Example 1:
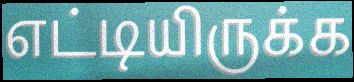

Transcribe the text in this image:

எட்டியிருக்க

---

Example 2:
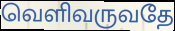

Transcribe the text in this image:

வெளிவருவதே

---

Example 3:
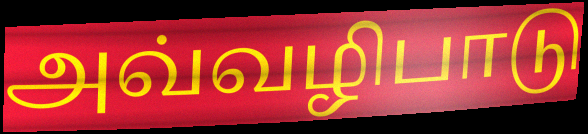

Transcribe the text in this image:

அவ்வழிபாடு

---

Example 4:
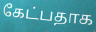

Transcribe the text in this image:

கேட்பதாக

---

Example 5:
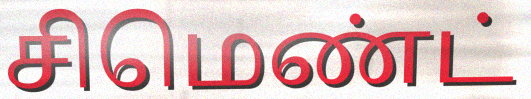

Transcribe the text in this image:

சிமெண்ட்